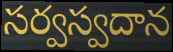
సర్వస్వదాన